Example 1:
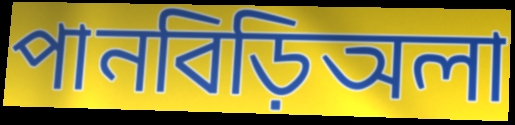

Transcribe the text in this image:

পানবিড়িঅলা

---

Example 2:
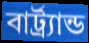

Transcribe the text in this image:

বার্ট্র্যান্ড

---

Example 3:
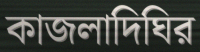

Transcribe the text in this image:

কাজলাদিঘির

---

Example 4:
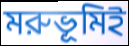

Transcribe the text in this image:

মরুভূমিই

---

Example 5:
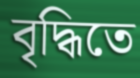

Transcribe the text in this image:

বৃদ্ধিতে